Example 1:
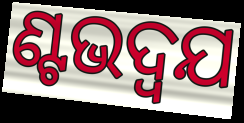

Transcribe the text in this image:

ଣ୍ଟଭଦ୍ଵଯ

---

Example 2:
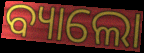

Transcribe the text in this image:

ବ୍ୟାଲୋ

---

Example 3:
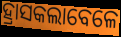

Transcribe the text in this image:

ହ୍ରାସକଲାବେଳେ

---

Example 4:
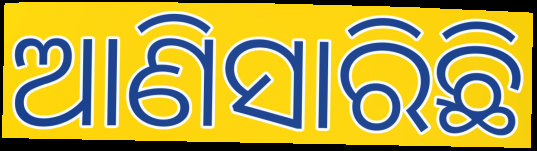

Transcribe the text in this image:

ଆଣିସାରିଛି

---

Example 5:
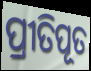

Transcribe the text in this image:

ପ୍ରୀତିପୂତ